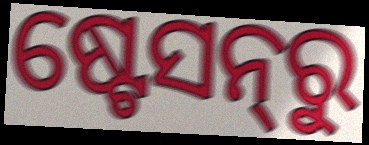
ଷ୍ଟେସନ୍‌ରୁ